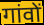
गांवों